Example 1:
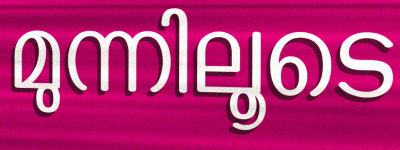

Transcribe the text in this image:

മുന്നിലൂടെ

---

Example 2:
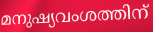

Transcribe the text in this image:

മനുഷ്യവംശത്തിന്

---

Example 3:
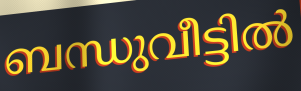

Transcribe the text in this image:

ബന്ധുവീട്ടിൽ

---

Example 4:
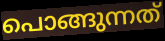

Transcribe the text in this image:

പൊങ്ങുന്നത്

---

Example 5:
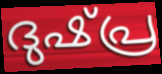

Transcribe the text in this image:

ദുഷ്‌പ്ര